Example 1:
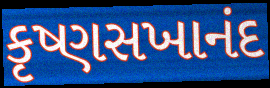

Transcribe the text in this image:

કૃષ્ણસખાનંદ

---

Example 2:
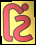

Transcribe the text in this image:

ટિં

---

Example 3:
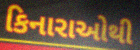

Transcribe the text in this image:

કિનારાઓથી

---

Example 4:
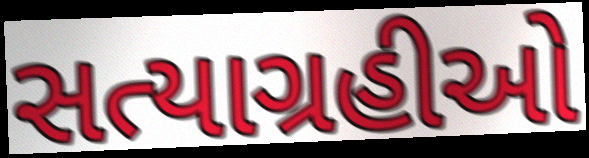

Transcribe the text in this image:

સત્યાગ્રહીઓ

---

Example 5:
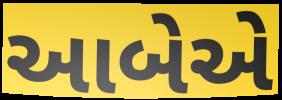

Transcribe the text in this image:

આબેએ